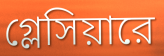
গ্লেসিয়ারে